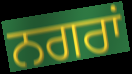
ਨਗਰਾਂ